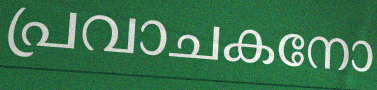
പ്രവാചകനോ